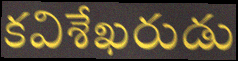
కవిశేఖరుడు